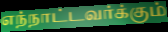
எந்நாட்டவர்க்கும்